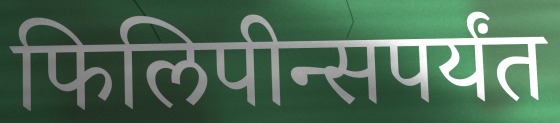
फिलिपीन्सपर्यंत